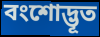
বংশোদ্ভূত